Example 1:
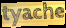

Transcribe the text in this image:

tyache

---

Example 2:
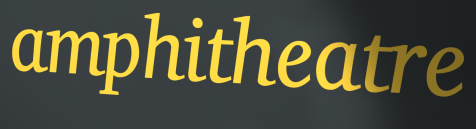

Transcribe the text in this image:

amphitheatre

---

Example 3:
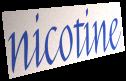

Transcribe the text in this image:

nicotine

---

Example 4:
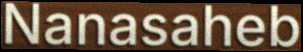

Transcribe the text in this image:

Nanasaheb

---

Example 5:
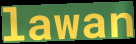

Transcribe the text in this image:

lawan